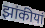
झांकीयां